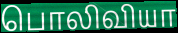
பொலிவியா